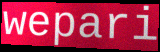
wepari